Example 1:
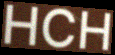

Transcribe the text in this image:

HCH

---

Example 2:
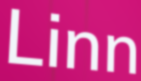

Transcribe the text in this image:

Linn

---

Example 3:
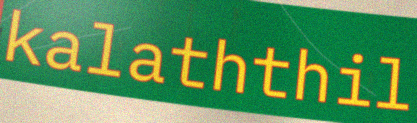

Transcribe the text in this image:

kalaththil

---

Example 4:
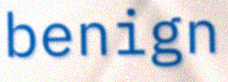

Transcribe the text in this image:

benign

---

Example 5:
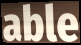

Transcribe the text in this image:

able